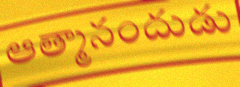
ఆత్మానందుడు